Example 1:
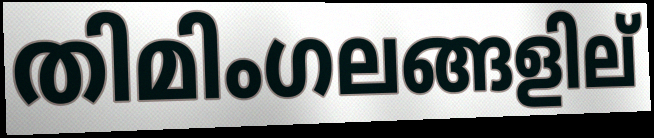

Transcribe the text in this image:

തിമിംഗലങ്ങളില്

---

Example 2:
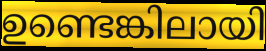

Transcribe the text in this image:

ഉണ്ടെങ്കിലായി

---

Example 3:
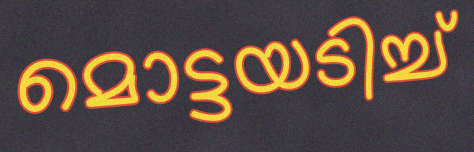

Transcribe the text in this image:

മൊട്ടയടിച്ച്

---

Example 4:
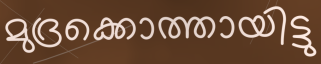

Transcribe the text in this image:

മുദ്രക്കൊത്തായിട്ടു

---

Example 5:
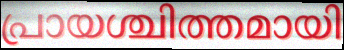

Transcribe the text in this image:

പ്രായശ്ചിത്തമായി